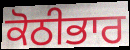
ਕੋਠੀਭਾਰ